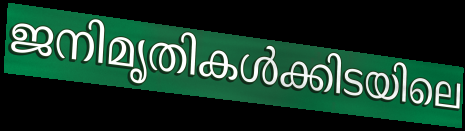
ജനിമൃതികൾക്കിടയിലെ